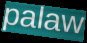
palaw